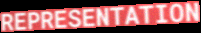
REPRESENTATION